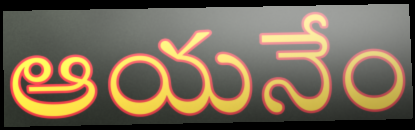
ఆయనేం